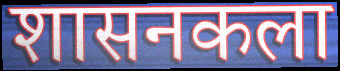
शासनकला